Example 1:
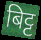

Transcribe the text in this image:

बिट्ट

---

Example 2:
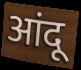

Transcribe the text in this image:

आंदू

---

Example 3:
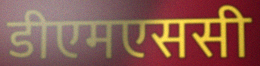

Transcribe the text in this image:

डीएमएससी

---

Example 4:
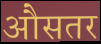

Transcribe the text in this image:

औसतर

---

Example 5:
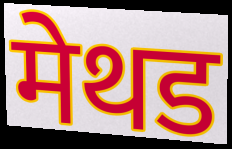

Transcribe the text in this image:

मेथड